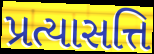
પ્રત્યાસત્તિ